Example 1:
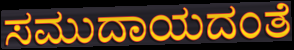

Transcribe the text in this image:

ಸಮುದಾಯದಂತೆ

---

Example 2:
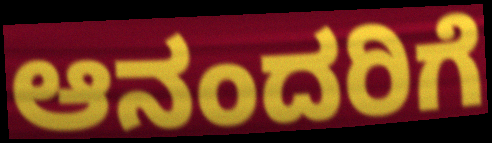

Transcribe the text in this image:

ಆನಂದರಿಗೆ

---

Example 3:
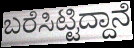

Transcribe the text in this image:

ಬರೆಸಿಟ್ಟಿದ್ದಾನೆ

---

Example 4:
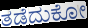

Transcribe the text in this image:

ತಡೆದುಕೋ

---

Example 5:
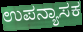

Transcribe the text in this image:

ಉಪನ್ಯಾಸಕ